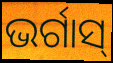
ଭର୍ଗାସ୍